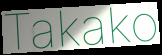
Takako